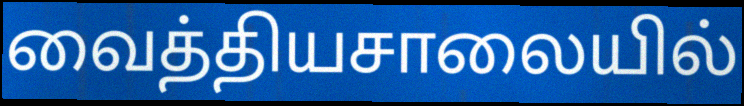
வைத்தியசாலையில்